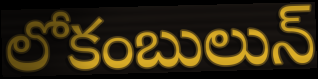
లోకంబులున్